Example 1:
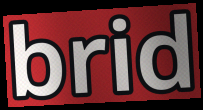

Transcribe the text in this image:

brid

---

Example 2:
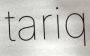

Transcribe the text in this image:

tariq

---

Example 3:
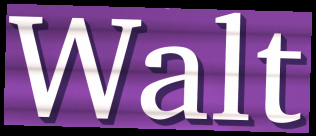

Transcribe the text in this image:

Walt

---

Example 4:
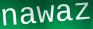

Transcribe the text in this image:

nawaz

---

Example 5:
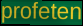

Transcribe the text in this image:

profeten